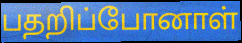
பதறிப்போனாள்